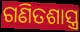
ଗଣିତଶାସ୍ତ୍ର